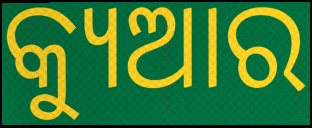
କ୍ୟୁଆର